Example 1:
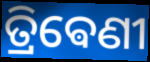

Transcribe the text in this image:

ତ୍ରିଵେଣୀ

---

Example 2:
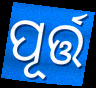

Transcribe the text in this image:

ପୂର୍ତ୍ତ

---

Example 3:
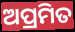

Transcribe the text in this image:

ଅପ୍ରମିତ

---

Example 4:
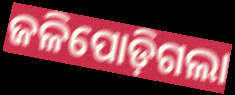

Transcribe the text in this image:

ଜଳିପୋଡ଼ିଗଲା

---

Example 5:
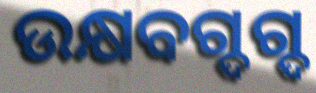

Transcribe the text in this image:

ଉକ୍ଷବଗ୍ଦଗ୍ଦ